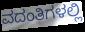
ವದಂತಿಗಳಲ್ಲಿ